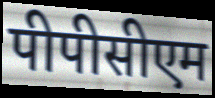
पीपीसीएम